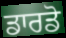
ਡਾਰਡੋ